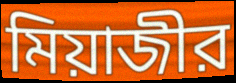
মিয়াজীর